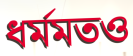
ধর্মমতও